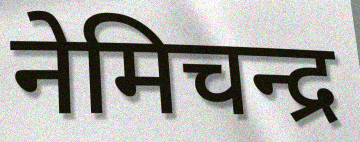
नेमिचन्द्र